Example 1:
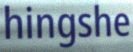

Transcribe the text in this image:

hingshe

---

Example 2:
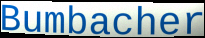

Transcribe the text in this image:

Bumbacher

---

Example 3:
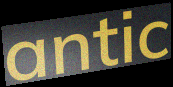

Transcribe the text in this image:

antic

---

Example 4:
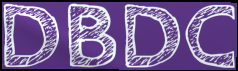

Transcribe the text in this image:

DBDC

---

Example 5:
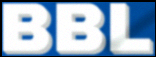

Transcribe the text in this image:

BBL